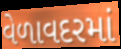
વેળાવદરમાં